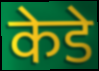
केडे